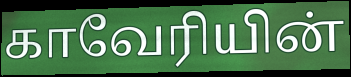
காவேரியின்